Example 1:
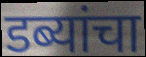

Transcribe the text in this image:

डब्यांचा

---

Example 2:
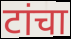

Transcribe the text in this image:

टांचा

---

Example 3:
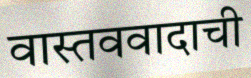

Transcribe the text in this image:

वास्तववादाची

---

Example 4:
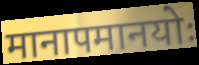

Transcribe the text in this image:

मानापमानयोः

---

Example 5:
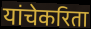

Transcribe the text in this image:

यांचेकरिता